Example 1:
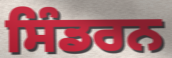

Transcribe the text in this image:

ਸਿੰਡਰਨ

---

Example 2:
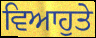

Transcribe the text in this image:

ਵਿਆਹੁਤੇ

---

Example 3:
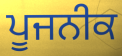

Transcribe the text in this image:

ਪੂਜਨੀਕ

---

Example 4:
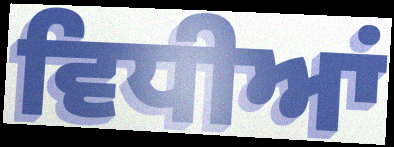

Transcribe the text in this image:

ਵਿਧੀਆਂ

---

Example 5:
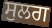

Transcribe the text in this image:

ਸੁਲਗ